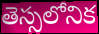
తెస్సలోనిక